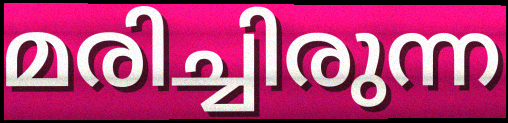
മരിച്ചിരുന്ന